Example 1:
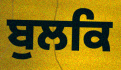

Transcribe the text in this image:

ਬੁਲਕਿ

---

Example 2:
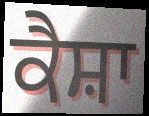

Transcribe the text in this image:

ਕੈਸ਼ਾ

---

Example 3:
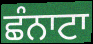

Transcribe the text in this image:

ਛੰਨਾਟਾ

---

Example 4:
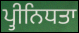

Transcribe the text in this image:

ਪ੍ਤੀਨਿਧਤਾ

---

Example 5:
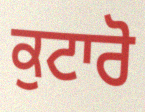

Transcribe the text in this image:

ਕੁਟਾਰੋ